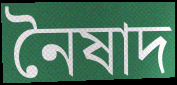
নৈষাদ